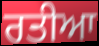
ਰਤੀਆ